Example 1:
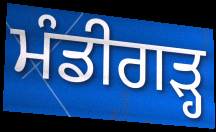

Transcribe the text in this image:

ਮੰਡੀਗੜ੍ਹ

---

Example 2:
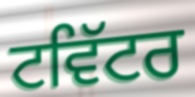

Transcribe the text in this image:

ਟਵਿੱਟਰ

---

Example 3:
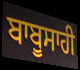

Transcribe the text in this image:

ਬਾਬੂਸਾਹੀ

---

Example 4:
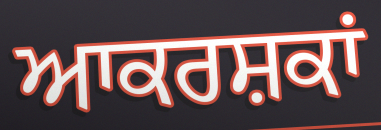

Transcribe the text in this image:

ਆਕਰਸ਼ਕਾਂ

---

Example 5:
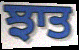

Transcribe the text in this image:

ਝਾਤ